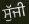
ਸੁੱਜੀ